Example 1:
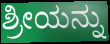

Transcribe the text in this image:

ಶ್ರೀಯನ್ನು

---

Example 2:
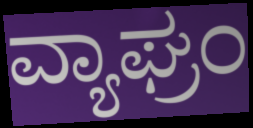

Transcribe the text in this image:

ವ್ಯಾಘ್ರಂ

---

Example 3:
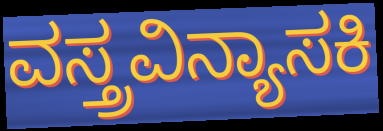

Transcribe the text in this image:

ವಸ್ತ್ರವಿನ್ಯಾಸಕಿ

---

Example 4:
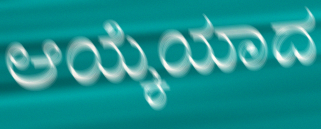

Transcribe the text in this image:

ಆಯ್ಕೆಯಾದ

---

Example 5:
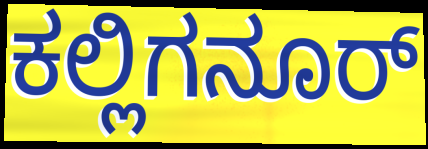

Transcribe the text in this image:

ಕಲ್ಲಿಗನೂರ್